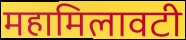
महामिलावटी